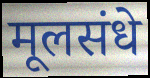
मूलसंधे